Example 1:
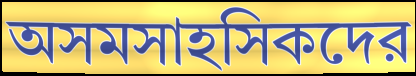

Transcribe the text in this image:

অসমসাহসিকদের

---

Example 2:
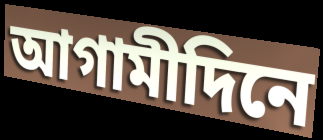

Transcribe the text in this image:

আগামীদিনে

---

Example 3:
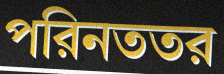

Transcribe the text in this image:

পরিনততর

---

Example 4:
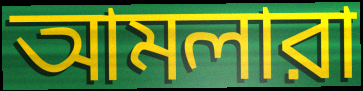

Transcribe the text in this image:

আমলারা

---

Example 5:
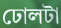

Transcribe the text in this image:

ঢোলটা